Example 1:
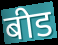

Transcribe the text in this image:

बीड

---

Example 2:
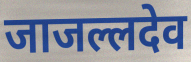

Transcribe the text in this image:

जाजल्लदेव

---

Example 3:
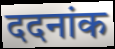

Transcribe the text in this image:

ददनांक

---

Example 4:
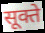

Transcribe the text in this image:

सूक्ते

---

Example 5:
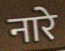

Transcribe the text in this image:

नारे